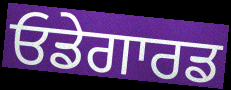
ਓਡੇਗਾਰਡ